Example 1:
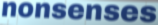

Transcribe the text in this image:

nonsenses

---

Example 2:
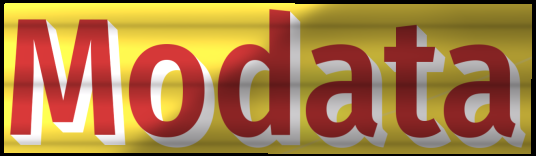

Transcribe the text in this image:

Modata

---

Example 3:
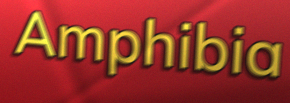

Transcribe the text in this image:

Amphibia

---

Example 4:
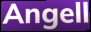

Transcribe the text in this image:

Angell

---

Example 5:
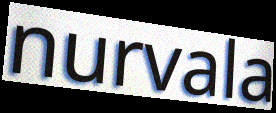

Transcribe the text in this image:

nurvala